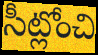
సీట్లోంచి